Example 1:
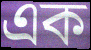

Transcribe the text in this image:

এক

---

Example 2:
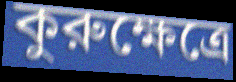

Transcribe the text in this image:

কুরুক্ষেত্রে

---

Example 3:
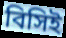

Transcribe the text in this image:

বিসিই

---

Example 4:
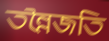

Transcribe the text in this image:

তন্নৈজতি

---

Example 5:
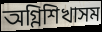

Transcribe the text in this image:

অগ্নিশিখাসম